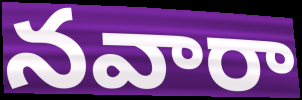
నవారా